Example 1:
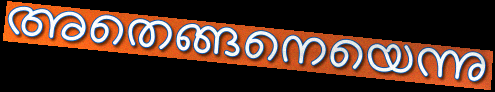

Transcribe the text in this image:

അതെങ്ങനെയെന്നു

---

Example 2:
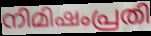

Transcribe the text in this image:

നിമിഷംപ്രതി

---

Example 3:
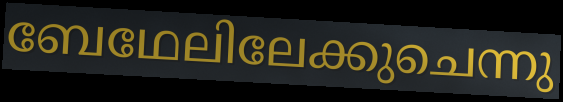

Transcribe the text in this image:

ബേഥേലിലേക്കുചെന്നു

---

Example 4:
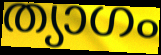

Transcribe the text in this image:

ത്യാഗം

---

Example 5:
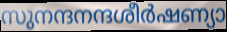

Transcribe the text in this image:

സുനന്ദനന്ദശീർഷണ്യാ